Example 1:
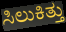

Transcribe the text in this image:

ಸಿಲುಕಿತ್ತು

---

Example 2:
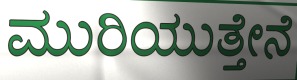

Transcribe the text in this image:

ಮುರಿಯುತ್ತೇನೆ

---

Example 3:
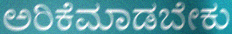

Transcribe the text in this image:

ಅರಿಕೆಮಾಡಬೇಕು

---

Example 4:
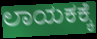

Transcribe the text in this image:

ಲಾಯಕಕ್ಕೆ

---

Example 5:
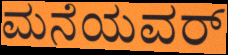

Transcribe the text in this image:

ಮನೆಯವರ್